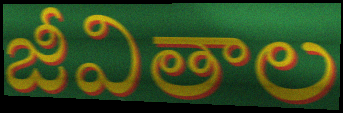
జీవితాల